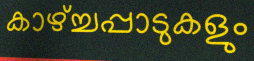
കാഴ്ച്ചപ്പാടുകളും